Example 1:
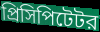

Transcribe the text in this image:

প্রিসিপিটেটর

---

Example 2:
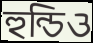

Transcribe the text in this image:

হুন্ডিও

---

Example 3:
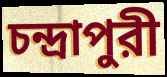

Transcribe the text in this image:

চন্দ্রাপুরী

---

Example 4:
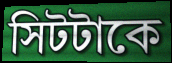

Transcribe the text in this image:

সিটটাকে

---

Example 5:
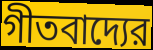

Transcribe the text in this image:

গীতবাদ্যের